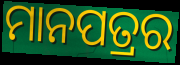
ମାନପତ୍ରର